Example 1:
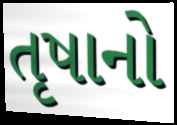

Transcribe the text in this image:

તૃષાનો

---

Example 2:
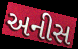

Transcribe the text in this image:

અનીસ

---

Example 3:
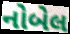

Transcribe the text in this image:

નોબેલ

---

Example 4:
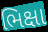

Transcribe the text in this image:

ભિક્ષા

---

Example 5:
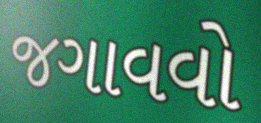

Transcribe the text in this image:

જગાવવો